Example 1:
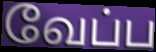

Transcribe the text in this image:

வேப்ப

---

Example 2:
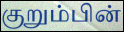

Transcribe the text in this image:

குறும்பின்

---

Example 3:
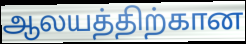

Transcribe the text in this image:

ஆலயத்திற்கான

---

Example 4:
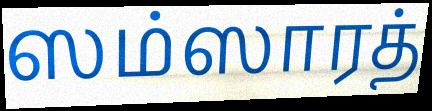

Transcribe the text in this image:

ஸம்ஸாரத்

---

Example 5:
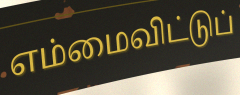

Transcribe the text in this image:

எம்மைவிட்டுப்